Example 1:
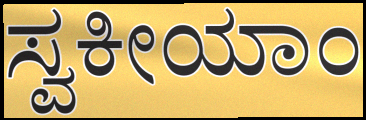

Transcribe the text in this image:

ಸ್ವಕೀಯಾಂ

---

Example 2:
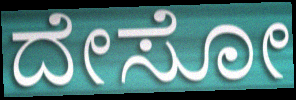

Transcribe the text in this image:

ದೇಸೋ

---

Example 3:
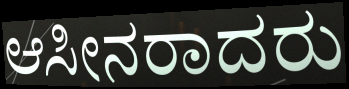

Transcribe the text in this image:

ಆಸೀನರಾದರು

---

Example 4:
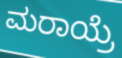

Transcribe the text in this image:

ಮರಾಯ್ರೆ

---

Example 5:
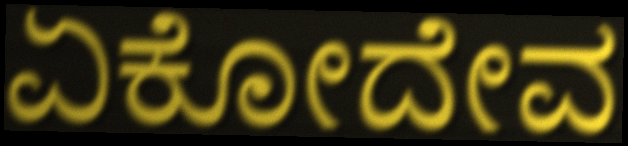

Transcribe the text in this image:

ಏಕೋದೇವ